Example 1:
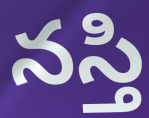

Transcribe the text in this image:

నస్తి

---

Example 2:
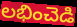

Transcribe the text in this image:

లభించెడి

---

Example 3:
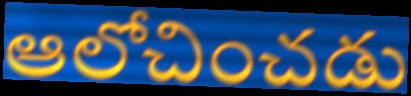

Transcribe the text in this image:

ఆలోచించడు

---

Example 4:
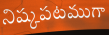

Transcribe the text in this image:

నిష్కపటముగా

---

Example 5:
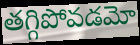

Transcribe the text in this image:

తగ్గిపోవడమో